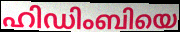
ഹിഡിംബിയെ